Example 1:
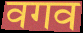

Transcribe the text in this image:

वगव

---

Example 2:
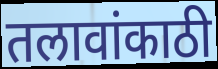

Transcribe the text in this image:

तलावांकाठी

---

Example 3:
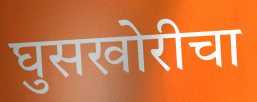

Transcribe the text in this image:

घुसखोरीचा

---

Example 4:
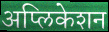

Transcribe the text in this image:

अप्लिकेशन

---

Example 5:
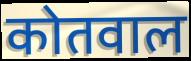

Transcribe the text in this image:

कोतवाल